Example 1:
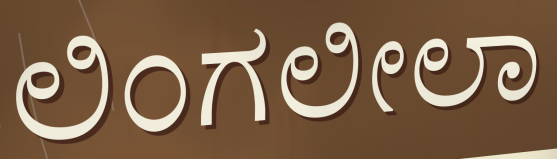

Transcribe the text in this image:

ಲಿಂಗಲೀಲಾ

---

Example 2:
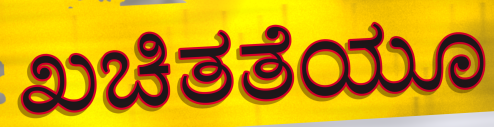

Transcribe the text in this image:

ಖಚಿತತೆಯೂ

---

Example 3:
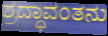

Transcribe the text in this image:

ಶ್ರದ್ಧಾವಂತನು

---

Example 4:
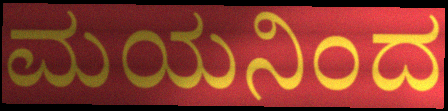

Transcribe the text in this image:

ಮಯನಿಂದ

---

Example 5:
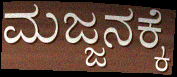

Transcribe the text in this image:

ಮಜ್ಜನಕ್ಕೆ